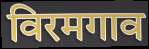
विरमगाव